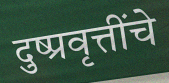
दुष्प्रवृत्तींचे